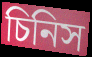
চিনিস